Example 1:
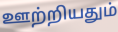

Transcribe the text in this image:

ஊற்றியதும்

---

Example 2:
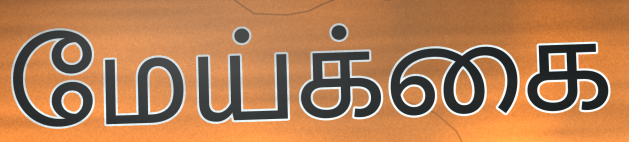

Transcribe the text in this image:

மேய்க்கை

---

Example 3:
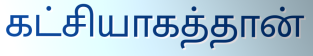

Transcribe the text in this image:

கட்சியாகத்தான்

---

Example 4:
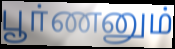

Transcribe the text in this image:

பூர்ணனும்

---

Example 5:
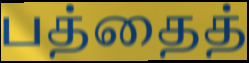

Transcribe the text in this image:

பத்தைத்